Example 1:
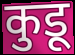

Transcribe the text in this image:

कुडू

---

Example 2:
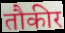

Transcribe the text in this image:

तौकीर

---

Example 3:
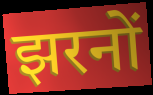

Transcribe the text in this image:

झरनों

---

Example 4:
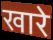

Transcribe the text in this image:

खारे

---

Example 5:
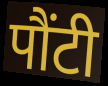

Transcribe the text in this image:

पौंटी